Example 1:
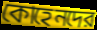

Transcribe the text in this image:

কোহেনদের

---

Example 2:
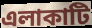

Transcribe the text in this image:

এলাকাটি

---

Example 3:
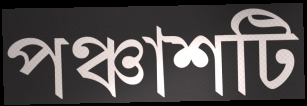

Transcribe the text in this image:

পঞ্চাশটি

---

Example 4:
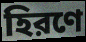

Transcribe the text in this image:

হিরণে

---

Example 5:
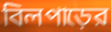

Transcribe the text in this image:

বিলপাড়ের